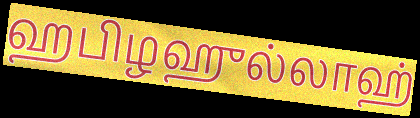
ஹபிழஹுல்லாஹ்